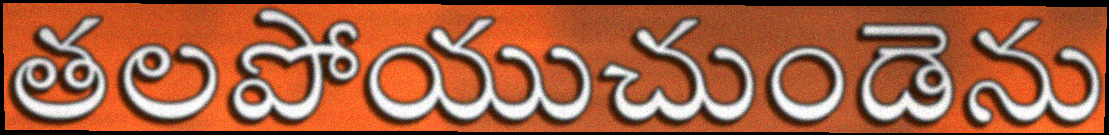
తలపోయుచుండెను